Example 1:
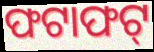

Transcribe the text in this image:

ଫଟାଫଟ୍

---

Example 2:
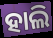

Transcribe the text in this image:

ହାଲି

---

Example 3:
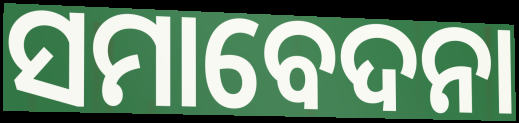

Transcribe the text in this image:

ସମାବେଦନା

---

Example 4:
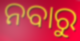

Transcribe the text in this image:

ନବାରୁ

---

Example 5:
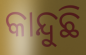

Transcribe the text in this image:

କାନ୍ଦୁଛି